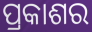
ପ୍ରକାଶର